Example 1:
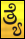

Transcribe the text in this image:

ತ್ಯೆ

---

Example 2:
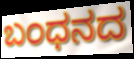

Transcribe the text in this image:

ಬಂಧನದ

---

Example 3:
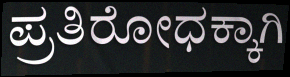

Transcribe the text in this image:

ಪ್ರತಿರೋಧಕ್ಕಾಗಿ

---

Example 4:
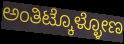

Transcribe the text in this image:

ಅಂತಿಟ್ಕೊಳ್ಳೋಣ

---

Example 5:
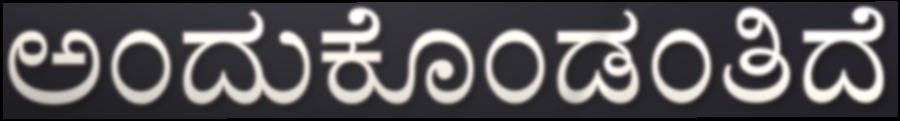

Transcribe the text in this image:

ಅಂದುಕೊಂಡಂತಿದೆ